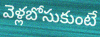
వెళ్లబోసుకుంటే